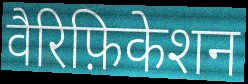
वैरिफ़िकेशन